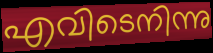
എവിടെനിന്നു